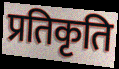
प्रतिकृति